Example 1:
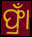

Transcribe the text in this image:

ଫ୍ରାଁ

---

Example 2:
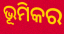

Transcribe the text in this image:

ଭୂମିକର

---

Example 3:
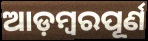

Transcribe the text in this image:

ଆଡ଼ମ୍ବରପୂର୍ଣ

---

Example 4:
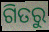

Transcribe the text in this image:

ଗିତରୁ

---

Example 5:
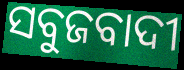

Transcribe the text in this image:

ସବୁଜବାଦୀ